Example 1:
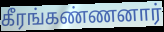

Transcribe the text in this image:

கீரங்கண்ணனார்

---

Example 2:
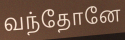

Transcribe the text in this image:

வந்தோனே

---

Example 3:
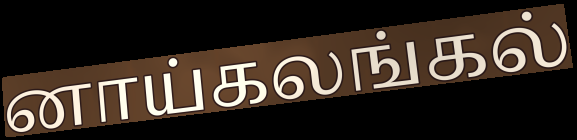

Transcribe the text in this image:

னாய்கலங்கல்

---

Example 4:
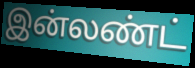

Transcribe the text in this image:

இன்லண்ட்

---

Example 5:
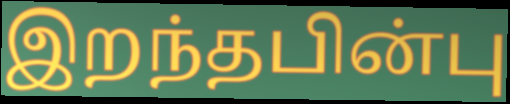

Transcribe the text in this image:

இறந்தபின்பு